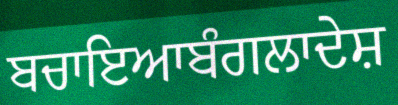
ਬਚਾਇਆਬੰਗਲਾਦੇਸ਼